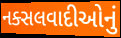
નક્સલવાદીઓનું